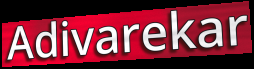
Adivarekar